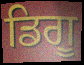
ਡਿਗੂ